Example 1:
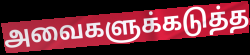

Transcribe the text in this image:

அவைகளுக்கடுத்த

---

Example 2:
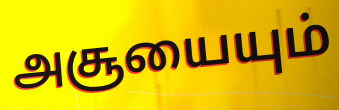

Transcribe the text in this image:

அசூயையும்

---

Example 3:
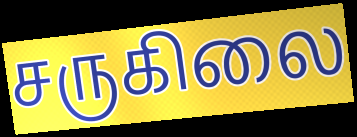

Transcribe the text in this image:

சருகிலை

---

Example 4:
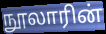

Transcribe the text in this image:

நூலாரின்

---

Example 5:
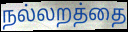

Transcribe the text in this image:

நல்லறத்தை